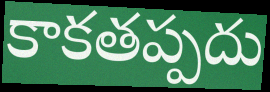
కాకతప్పదు